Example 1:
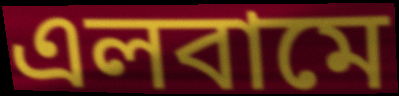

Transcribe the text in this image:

এলবামে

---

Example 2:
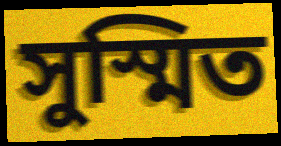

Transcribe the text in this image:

সুস্মিত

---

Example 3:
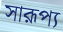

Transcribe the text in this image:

সারূপ্য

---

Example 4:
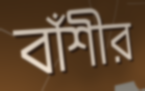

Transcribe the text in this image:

বাঁশীর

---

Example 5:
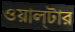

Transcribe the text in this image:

ওয়াল্‌টার